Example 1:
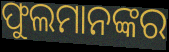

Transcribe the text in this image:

ଫୁଲମାନଙ୍କର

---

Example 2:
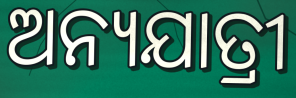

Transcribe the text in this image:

ଅନ୍ଯଯାତ୍ରୀ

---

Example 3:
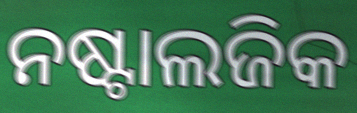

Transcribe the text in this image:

ନଷ୍ଟାଲଜିକ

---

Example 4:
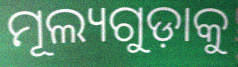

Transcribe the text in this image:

ମୂଲ୍ୟଗୁଡ଼ାକୁ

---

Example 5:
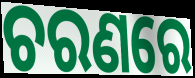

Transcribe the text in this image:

ଚରଣରେ